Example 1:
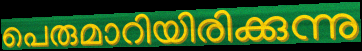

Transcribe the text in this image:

പെരുമാറിയിരിക്കുന്നു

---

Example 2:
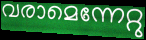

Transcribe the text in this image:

വരാമെന്നേറ്റു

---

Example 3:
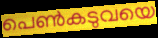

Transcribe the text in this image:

പെൺകടുവയെ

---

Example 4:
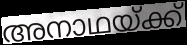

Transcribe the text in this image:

അനാഥയ്ക്ക്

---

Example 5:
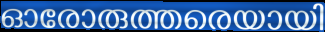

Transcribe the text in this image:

ഓരോരുത്തരെയായി